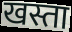
खस्ता